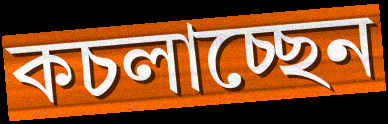
কচলাচ্ছেন